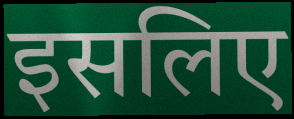
इसलिए